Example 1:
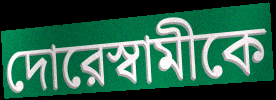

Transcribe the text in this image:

দোরেস্বামীকে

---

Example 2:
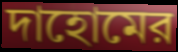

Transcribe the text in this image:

দাহোমের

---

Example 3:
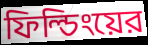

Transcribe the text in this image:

ফিল্ডিংয়ের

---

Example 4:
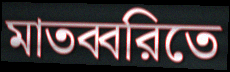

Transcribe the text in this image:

মাতব্বরিতে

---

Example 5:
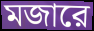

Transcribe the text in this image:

মজারে